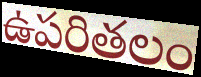
ఉపరితలం